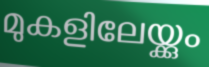
മുകളിലേയ്ക്കും